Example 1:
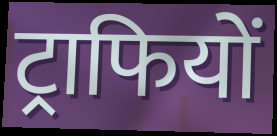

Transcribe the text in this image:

ट्राफियों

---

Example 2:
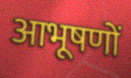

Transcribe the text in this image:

आभूषणों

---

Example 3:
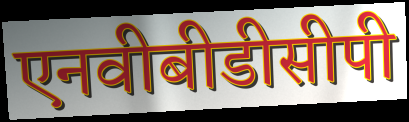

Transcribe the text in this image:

एनवीबीडीसीपी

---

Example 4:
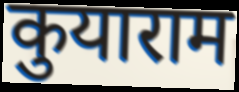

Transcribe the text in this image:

कुयाराम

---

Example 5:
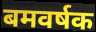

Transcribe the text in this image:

बमवर्षक